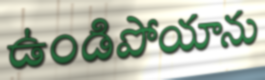
ఉండిపోయాను